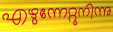
എഴുന്നേറ്റുനിന്നു